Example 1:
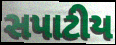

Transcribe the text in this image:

સપાટીય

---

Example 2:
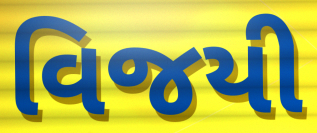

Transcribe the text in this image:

વિજયી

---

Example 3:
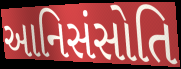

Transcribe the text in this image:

આનિસંસોતિ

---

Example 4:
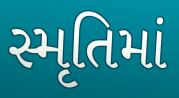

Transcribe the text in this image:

સ્મૃતિમાં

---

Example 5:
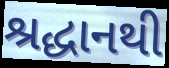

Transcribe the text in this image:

શ્રદ્ધાનથી